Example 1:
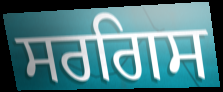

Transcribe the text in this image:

ਸਰਗਿਸ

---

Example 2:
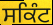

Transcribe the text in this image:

ਸਕਿੰਟ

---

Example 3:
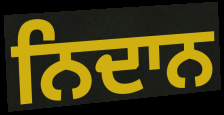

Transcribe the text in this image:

ਨਿਦਾਨ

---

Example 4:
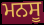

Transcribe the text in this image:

ਮਨਸੂ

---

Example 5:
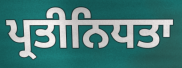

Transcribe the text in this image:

ਪ੍ਰਤੀਨਿਧਤਾ